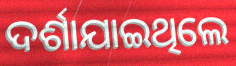
ଦର୍ଶାଯାଇଥିଲେ